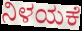
ನಿಳಯಕೆ